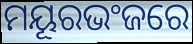
ମୟୂରଭଂଜରେ